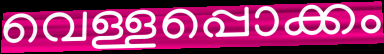
വെള്ളപ്പൊക്കം